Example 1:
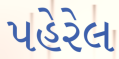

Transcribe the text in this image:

પહેરેલ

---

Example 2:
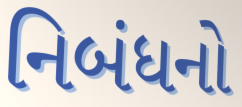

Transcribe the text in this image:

નિબંધનો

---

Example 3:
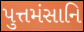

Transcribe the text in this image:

પુત્તમંસાનિ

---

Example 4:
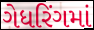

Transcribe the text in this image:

ગેધરિંગમાં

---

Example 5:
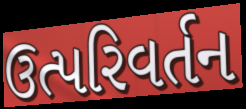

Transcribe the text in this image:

ઉત્પરિવર્તન